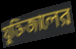
যুক্তিজালের